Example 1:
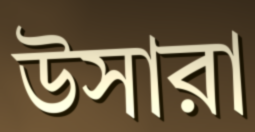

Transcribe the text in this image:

উসারা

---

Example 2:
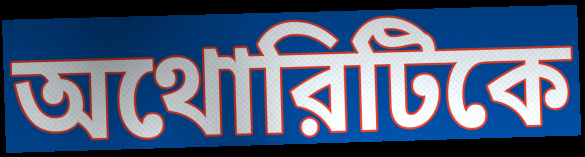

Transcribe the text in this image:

অথোরিটিকে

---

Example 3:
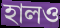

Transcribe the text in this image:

হালও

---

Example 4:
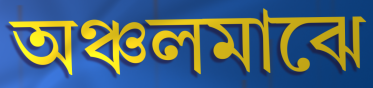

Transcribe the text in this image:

অঞ্চলমাঝে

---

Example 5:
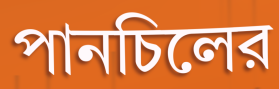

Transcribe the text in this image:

পানচিলের